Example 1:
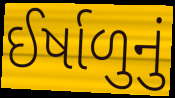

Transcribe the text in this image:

ઈર્ષાળુનું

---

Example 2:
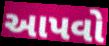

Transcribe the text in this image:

આપવો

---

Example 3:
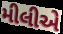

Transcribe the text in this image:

મીલીએ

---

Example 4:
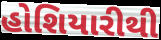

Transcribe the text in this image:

હોશિયારીથી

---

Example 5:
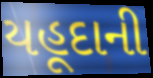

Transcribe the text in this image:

યહૂદાની